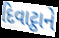
દિવાટ્ઠાને